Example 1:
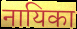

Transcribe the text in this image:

नायिका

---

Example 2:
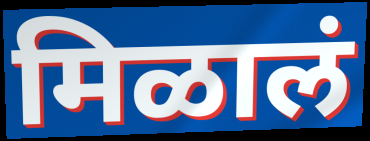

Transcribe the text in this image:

मिळालं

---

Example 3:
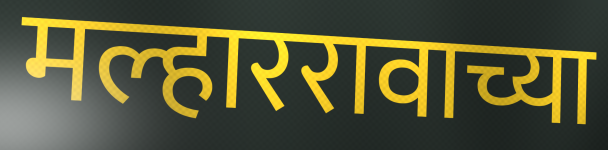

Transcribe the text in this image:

मल्हाररावाच्या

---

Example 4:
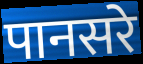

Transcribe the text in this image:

पानसरे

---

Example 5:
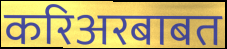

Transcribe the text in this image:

करिअरबाबत